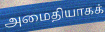
அமைதியாகக்